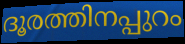
ദൂരത്തിനപ്പുറം